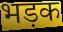
भड़क